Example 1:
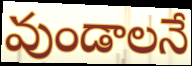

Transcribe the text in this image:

వుండాలనే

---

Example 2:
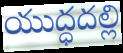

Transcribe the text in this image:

యుద్ధదల్లి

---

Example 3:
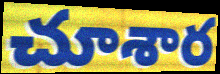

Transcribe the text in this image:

చూశార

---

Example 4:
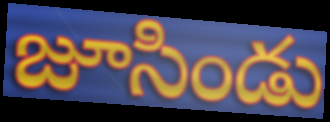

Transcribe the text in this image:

జూసిండు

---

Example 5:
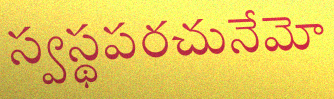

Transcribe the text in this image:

స్వస్థపరచునేమో